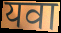
यवा